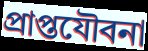
প্রাপ্তযৌবনা